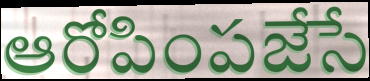
ఆరోపింపజేసే